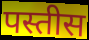
पस्तीस